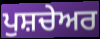
ਪੁਸ਼ਚੇਅਰ